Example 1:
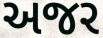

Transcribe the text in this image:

અજર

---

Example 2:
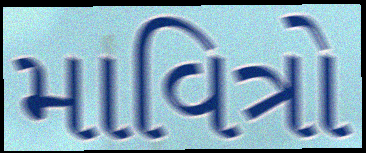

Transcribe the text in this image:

માવિત્રો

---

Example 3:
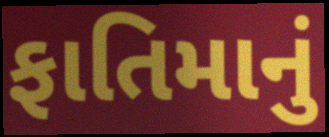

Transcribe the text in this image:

ફાતિમાનું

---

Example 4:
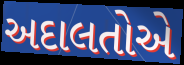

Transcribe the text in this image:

અદાલતોએ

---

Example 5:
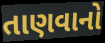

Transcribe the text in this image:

તાણવાનો